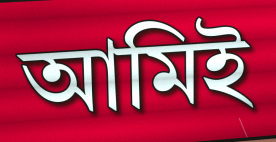
আমিই